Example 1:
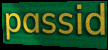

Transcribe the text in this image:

passid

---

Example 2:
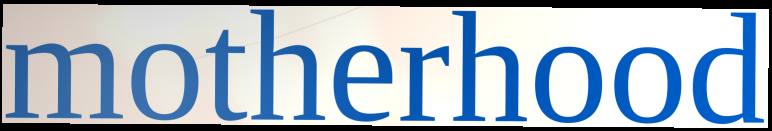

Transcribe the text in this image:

motherhood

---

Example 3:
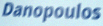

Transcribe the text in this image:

Danopoulos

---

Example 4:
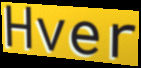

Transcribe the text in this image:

Hver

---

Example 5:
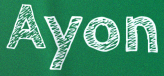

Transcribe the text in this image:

Ayon